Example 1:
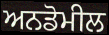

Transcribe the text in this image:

ਅਨਡੋਮੀਲ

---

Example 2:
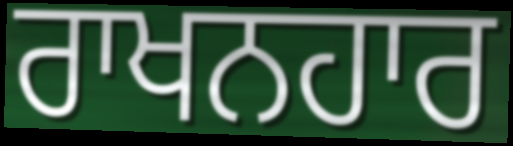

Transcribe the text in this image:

ਰਾਖਨਹਾਰ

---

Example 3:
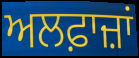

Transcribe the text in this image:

ਅਲਫ਼ਾਜ਼ਾਂ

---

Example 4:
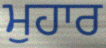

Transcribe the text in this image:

ਮੁਹਾਰ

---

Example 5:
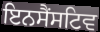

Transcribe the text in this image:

ਇਨਸੈਂਸਟਿਵ